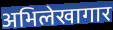
अभिलेखागार